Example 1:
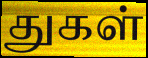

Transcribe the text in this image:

துகள்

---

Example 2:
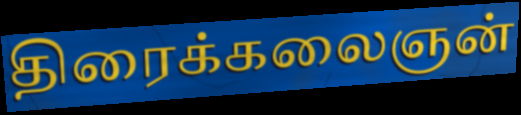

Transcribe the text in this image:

திரைக்கலைஞன்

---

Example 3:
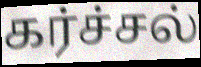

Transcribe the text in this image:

கர்ச்சல்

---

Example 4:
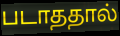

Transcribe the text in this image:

படாததால்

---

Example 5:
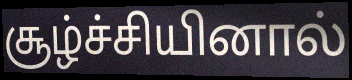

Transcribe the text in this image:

சூழ்ச்சியினால்